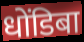
धोंडिबा